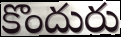
కొందురు